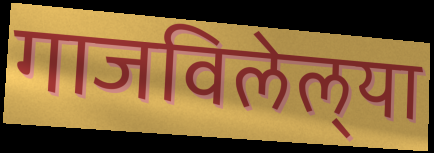
गाजविलेल्या